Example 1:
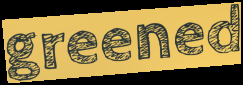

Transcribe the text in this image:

greened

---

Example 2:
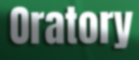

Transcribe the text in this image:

Oratory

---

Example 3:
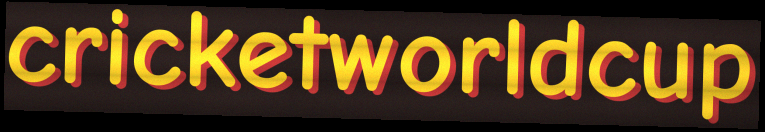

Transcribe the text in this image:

cricketworldcup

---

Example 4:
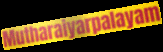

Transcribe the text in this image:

Mutharaiyarpalayam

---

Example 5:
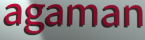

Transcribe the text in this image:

agaman